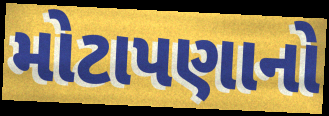
મોટાપણાનો